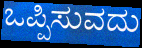
ಒಪ್ಪಿಸುವದು